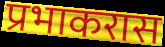
प्रभाकरास